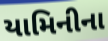
યામિનીના